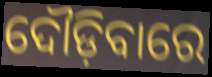
ଦୌଡ଼ିବାରେ